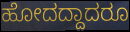
ಹೋದದ್ದಾದರೂ